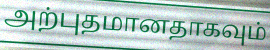
அற்புதமானதாகவும்